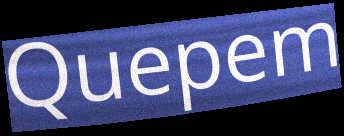
Quepem